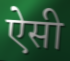
ऐसी